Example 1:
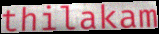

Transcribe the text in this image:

thilakam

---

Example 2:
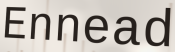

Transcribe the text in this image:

Ennead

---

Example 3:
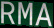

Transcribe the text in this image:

RMA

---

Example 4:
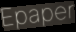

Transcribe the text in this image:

Epaper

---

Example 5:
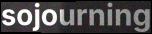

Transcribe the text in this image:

sojourning